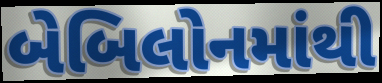
બેબિલોનમાંથી